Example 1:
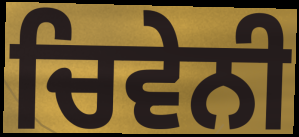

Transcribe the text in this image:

ਚਿਵੇਨੀ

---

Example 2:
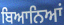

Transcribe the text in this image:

ਬਿਆਨਿਆਂ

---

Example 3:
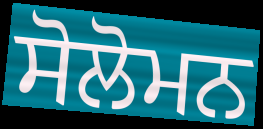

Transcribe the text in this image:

ਸੋਲੋਮਨ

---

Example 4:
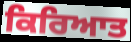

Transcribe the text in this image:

ਕਿਰਿਆਤ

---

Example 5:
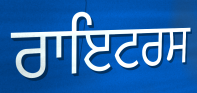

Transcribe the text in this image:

ਰਾਇਟਰਸ